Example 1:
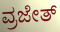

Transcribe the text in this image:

ವ್ರಜೇತ್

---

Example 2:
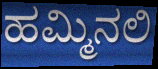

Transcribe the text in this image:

ಹಮ್ಮಿನಲಿ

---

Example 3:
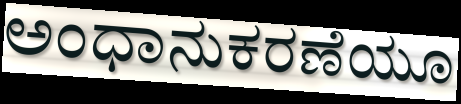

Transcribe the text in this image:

ಅಂಧಾನುಕರಣೆಯೂ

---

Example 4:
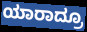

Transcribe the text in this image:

ಯಾರಾದ್ರೂ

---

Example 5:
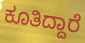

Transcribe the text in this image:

ಕೂತಿದ್ದಾರೆ